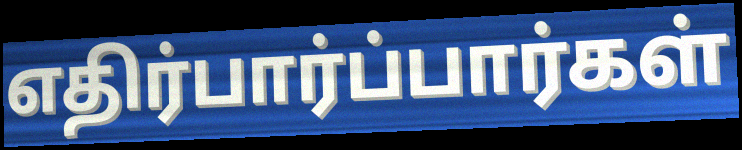
எதிர்பார்ப்பார்கள்